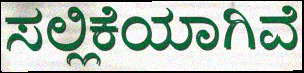
ಸಲ್ಲಿಕೆಯಾಗಿವೆ